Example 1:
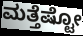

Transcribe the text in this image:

ಮತ್ತೆಷ್ಟೋ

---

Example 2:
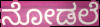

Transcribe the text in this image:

ನೋಡಲೆ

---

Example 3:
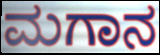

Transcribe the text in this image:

ಮಗಾನ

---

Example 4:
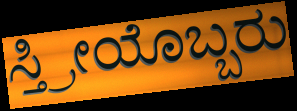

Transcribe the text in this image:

ಸ್ತ್ರೀಯೊಬ್ಬರು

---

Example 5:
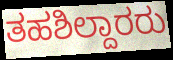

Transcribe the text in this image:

ತಹಶಿಲ್ದಾರರು